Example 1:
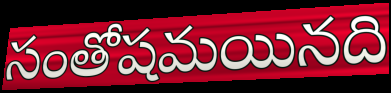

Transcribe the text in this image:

సంతోషమయినది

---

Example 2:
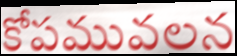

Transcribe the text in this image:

కోపమువలన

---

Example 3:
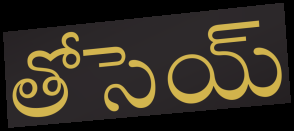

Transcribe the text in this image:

తోసెయ్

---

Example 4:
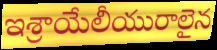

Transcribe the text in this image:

ఇశ్రాయేలీయురాలైన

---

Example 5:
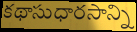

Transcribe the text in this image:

కథాసుధారసాన్ని